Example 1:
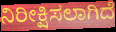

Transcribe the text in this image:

ನಿರೀಕ್ಷಿಸಲಾಗಿದೆ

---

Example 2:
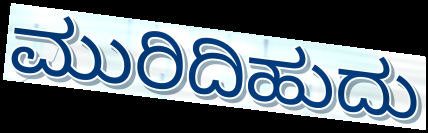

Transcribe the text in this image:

ಮುರಿದಿಹುದು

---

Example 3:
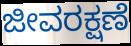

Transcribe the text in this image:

ಜೀವರಕ್ಷಣೆ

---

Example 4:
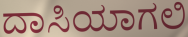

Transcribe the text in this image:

ದಾಸಿಯಾಗಲಿ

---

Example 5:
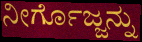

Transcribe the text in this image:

ನೀರ್ಗೊಜ್ಜನ್ನು